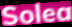
Solea